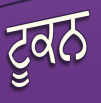
ਟੂਕਨ